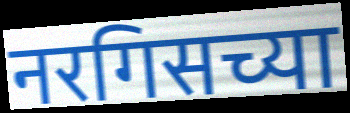
नरगिसच्या